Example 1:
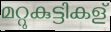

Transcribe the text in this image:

മറ്റുകുട്ടികള്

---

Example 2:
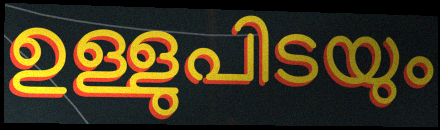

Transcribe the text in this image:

ഉള്ളുപിടയും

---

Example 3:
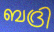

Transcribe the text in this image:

ബദ്രി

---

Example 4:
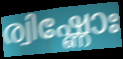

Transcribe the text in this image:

ര്വിഷ്ണോഃ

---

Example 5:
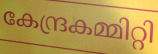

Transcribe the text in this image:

കേന്ദ്രകമ്മിറ്റി